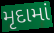
મૃદામાં